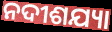
ନଦୀଶଯ୍ୟା